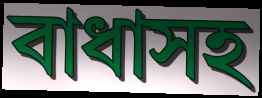
বাধাসহ